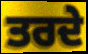
ਤਰਦੇ